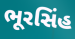
ભૂરસિંહ